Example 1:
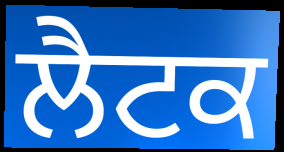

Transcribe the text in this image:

ਲੈਟਕ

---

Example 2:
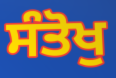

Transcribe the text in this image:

ਸੰਤੋਖੁ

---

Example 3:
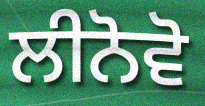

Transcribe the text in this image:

ਲੀਨੋਵੋ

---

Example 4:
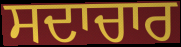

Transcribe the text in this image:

ਸਦਾਚਾਰ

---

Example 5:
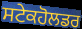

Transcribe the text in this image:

ਸਟੇਕਹੋਲਡਰ